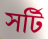
সর্টি